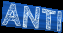
ANTI